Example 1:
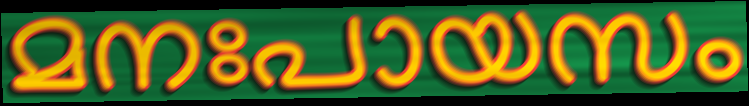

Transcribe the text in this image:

മനഃപായസം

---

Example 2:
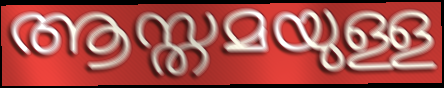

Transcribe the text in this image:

ആസ്തമയുള്ള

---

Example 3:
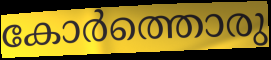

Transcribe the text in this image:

കോർത്തൊരു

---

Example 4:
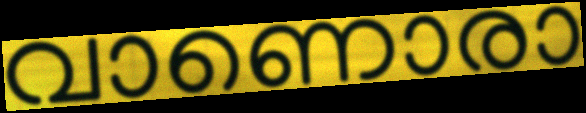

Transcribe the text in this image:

വാണൊരാ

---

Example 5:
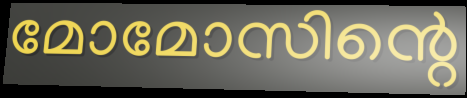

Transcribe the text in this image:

മോമോസിന്റെ